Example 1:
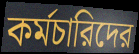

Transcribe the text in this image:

কর্মচারিদের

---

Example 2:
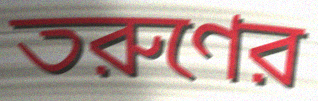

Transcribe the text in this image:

তরুণের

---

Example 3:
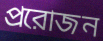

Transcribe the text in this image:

প্ররোজন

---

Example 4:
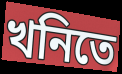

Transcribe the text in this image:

খনিতে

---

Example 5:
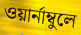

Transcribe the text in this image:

ওয়ার্নাম্বুলে